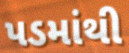
પડમાંથી